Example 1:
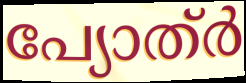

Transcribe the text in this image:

പ്യോത്ർ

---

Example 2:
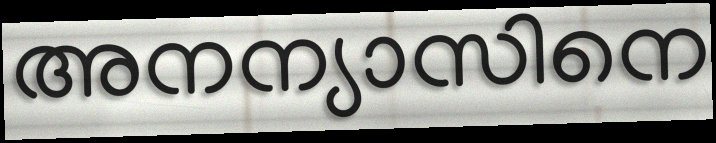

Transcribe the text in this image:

അനന്യാസിനെ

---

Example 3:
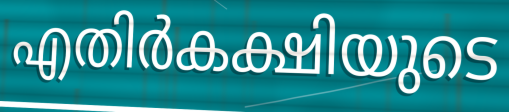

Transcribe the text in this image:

എതിർകക്ഷിയുടെ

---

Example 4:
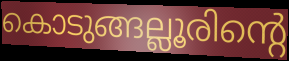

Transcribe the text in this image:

കൊടുങ്ങല്ലൂരിന്റെ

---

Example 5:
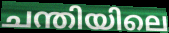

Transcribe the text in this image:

ചന്തിയിലെ